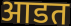
आडत